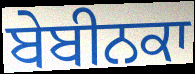
ਬੇਬੀਨਕਾ